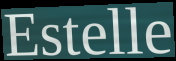
Estelle